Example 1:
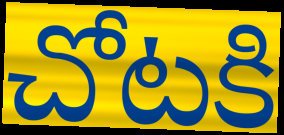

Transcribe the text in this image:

చోటకి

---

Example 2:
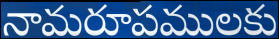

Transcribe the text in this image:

నామరూపములకు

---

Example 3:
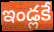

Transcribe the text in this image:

ఇండ్లకే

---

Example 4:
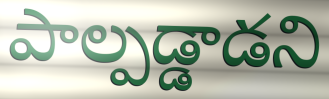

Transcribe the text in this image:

పాల్పడ్డాడని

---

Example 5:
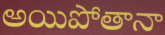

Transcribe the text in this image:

అయిపోతానా